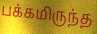
பக்கமிருந்த